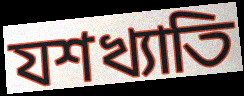
যশখ্যাতি